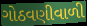
ગોઠવણીવાળી